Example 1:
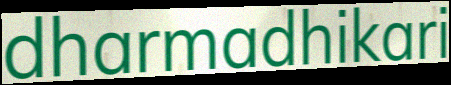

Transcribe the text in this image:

dharmadhikari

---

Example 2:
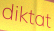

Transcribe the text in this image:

diktat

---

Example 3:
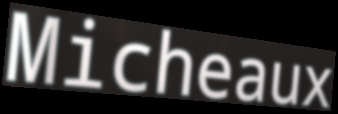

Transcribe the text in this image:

Micheaux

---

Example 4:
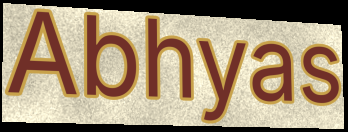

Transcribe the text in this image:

Abhyas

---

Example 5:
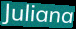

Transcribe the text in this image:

Juliana